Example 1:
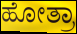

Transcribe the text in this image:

ಹೋತ್ರಾ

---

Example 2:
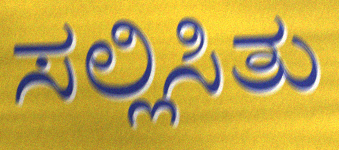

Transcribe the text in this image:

ಸಲ್ಲಿಸಿತು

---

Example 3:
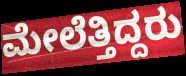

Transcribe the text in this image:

ಮೇಲೆತ್ತಿದ್ದರು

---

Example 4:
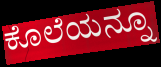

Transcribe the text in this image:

ಕೊಲೆಯನ್ನೂ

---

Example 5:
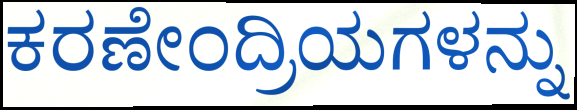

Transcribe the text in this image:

ಕರಣೇಂದ್ರಿಯಗಳನ್ನು